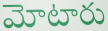
మోటారు